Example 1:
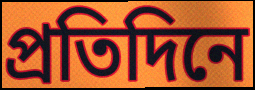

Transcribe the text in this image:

প্ৰতিদিনে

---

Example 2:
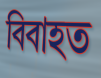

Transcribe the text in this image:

বিবাহত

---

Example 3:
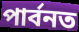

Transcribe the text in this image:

পাৰ্বনত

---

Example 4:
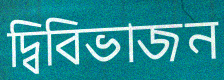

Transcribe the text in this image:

দ্বিবিভাজন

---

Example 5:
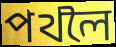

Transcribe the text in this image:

পথলৈ